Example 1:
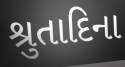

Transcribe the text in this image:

શ્રુતાદિના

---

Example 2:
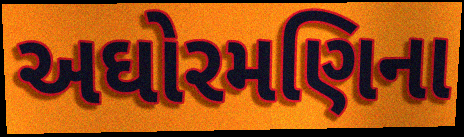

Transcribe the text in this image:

અઘોરમણિના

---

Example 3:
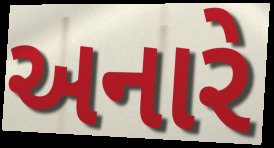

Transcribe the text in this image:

અનારે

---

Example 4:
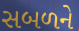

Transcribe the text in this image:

સબળને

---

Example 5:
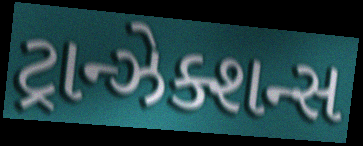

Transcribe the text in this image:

ટ્રાન્ઝેક્શન્સ